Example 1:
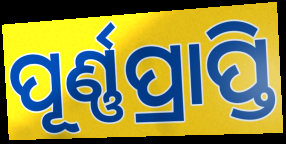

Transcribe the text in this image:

ପୂର୍ଣ୍ଣପ୍ରାପ୍ତି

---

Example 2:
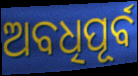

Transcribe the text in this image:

ଅବଧିପୂର୍ବ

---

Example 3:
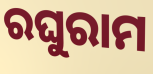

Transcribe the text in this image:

ରଘୁରାମ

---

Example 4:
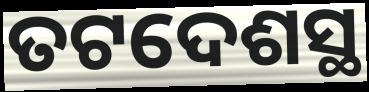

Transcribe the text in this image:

ତଟଦେଶସ୍ଥ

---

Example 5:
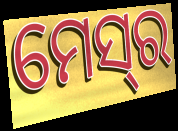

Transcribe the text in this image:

ମେସ୍‍ର